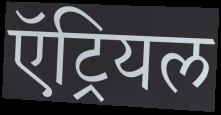
ऍट्रियल